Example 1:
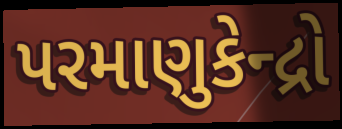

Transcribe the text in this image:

પરમાણુકેન્દ્રો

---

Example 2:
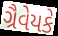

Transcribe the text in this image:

ગ્રૈવેયકે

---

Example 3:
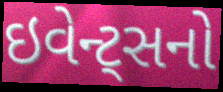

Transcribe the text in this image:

ઇવેન્ટ્સનો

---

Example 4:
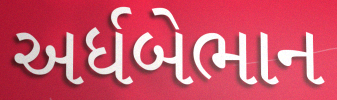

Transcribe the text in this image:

અર્ધબેભાન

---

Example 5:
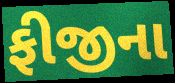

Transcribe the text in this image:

ફીજીના